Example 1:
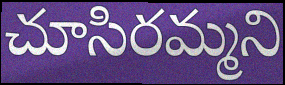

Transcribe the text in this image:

చూసిరమ్మని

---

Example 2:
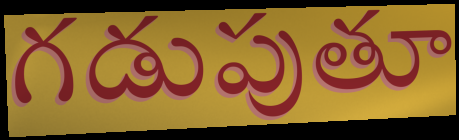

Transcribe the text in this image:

గడుపుతూ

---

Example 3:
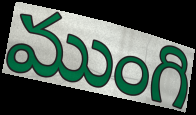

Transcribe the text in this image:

ముంగి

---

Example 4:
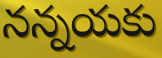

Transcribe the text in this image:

నన్నయకు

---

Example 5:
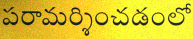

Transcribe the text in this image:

పరామర్శించడంలో